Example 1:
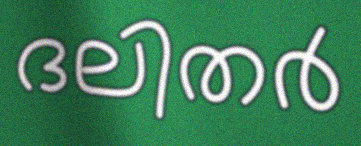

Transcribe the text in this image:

ദലിതർ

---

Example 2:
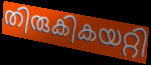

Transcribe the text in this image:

തിരുകികയറ്റി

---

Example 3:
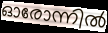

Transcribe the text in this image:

ഓരോന്നിൽ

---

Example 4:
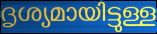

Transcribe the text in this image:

ദൃശ്യമായിട്ടുള്ള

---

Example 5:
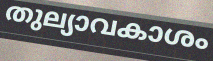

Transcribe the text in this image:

തുല്യാവകാശം